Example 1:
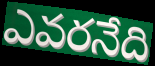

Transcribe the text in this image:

ఎవరనేది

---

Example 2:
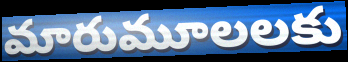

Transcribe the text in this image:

మారుమూలలకు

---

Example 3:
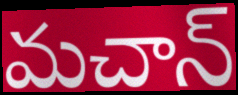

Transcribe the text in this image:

మచాన్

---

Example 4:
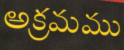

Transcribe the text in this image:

అక్రమము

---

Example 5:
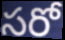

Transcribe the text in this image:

సరో